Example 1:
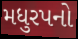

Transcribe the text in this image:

મધુરપનો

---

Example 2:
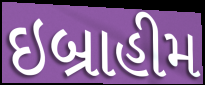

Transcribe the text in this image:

ઇબ્રાહીમ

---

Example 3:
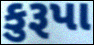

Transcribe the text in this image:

કુરૂપા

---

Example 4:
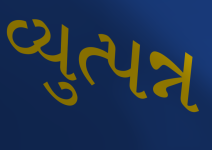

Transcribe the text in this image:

વ્યુત્પન્ન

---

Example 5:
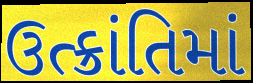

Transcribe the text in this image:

ઉત્ક્રાંતિમાં